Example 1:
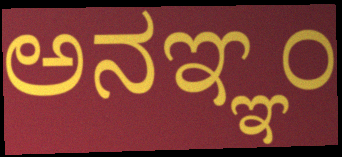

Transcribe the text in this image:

ಅನಞ್ಞಂ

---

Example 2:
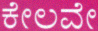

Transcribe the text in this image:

ಕೇಲವೇ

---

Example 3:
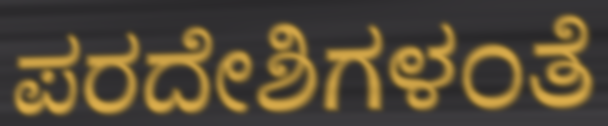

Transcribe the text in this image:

ಪರದೇಶಿಗಳಂತೆ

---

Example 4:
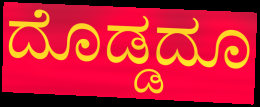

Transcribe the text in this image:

ದೊಡ್ಡದೂ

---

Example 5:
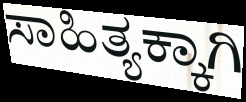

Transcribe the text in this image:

ಸಾಹಿತ್ಯಕ್ಕಾಗಿ